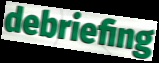
debriefing